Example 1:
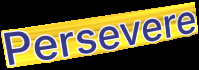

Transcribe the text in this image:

Persevere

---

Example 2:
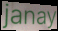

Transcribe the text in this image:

janay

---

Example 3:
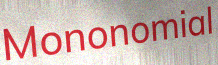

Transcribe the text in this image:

Mononomial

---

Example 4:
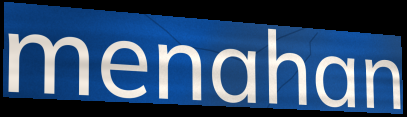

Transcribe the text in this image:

menahan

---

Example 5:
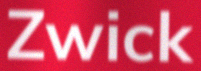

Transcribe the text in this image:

Zwick